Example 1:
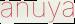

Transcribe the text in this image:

anuya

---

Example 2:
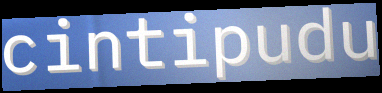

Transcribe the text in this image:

cintipudu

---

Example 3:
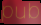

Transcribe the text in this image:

pub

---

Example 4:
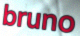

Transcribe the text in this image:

bruno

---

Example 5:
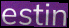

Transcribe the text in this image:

estin